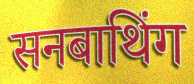
सनबाथिंग